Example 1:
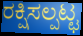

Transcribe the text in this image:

ರಕ್ಷಿಸಲ್ಪಟ್ಟ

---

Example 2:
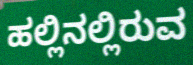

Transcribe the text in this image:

ಹಲ್ಲಿನಲ್ಲಿರುವ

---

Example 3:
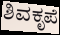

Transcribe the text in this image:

ಶಿವಕೃಪೆ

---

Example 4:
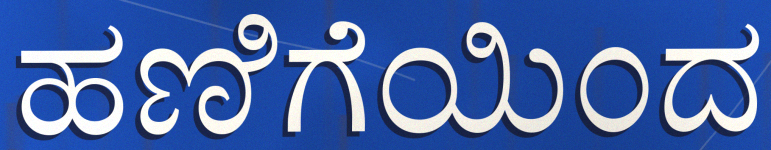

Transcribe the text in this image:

ಹಣಿಗೆಯಿಂದ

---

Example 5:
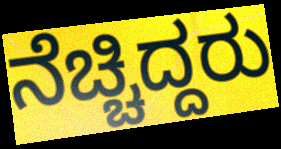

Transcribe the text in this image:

ನೆಚ್ಚಿದ್ದರು